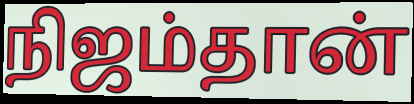
நிஜம்தான்